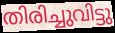
തിരിച്ചുവിട്ടു